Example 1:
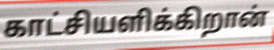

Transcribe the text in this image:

காட்சியளிக்கிறான்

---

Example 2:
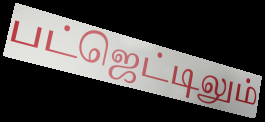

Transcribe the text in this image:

பட்ஜெட்டிலும்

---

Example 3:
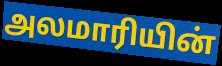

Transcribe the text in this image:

அலமாரியின்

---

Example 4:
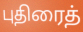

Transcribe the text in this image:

புதிரைத்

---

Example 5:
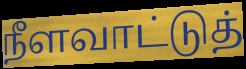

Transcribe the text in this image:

நீளவாட்டுத்